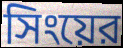
সিংয়ের